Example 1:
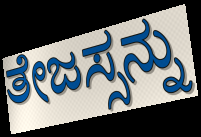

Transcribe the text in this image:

ತೇಜಸ್ಸನ್ನು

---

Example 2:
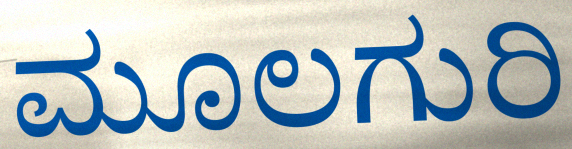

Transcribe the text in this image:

ಮೂಲಗುರಿ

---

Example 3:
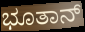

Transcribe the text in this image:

ಭೂತಾನ್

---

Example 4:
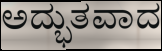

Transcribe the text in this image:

ಅದ್ಭುತವಾದ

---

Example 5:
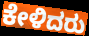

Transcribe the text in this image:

ಕೇಳಿದರು